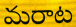
మరాట